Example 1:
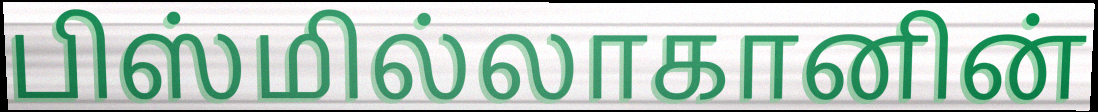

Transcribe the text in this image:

பிஸ்மில்லாகானின்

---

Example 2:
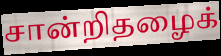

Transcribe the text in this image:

சான்றிதழைக்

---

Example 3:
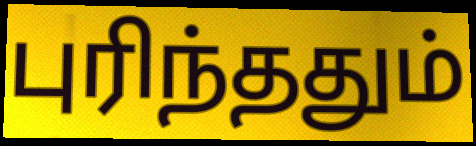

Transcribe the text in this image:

புரிந்ததும்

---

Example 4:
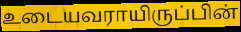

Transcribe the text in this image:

உடையவராயிருப்பின்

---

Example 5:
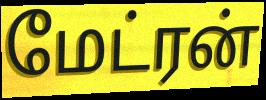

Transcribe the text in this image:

மேட்ரன்